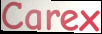
Carex